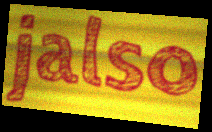
jalso